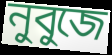
নুবুজে